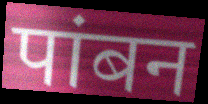
पांबन